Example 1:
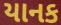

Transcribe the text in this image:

યાનક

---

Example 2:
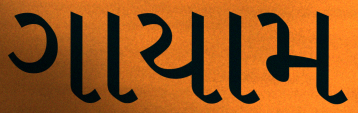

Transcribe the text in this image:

ગાયામ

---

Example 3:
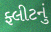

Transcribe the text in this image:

ફ્લીટનું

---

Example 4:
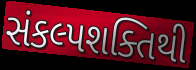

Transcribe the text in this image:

સંકલ્પશક્તિથી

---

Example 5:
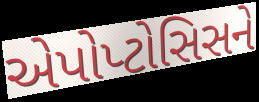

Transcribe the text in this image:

એપોપ્ટોસિસને